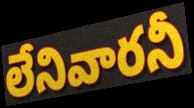
లేనివారనీ